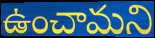
ఉంచామని